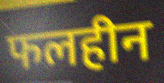
फलहीन